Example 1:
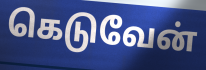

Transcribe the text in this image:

கெடுவேன்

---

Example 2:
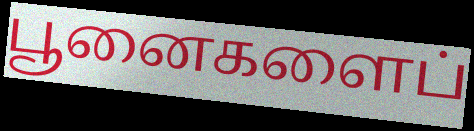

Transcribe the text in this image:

பூனைகளைப்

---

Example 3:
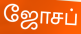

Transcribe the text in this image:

ஜோசப்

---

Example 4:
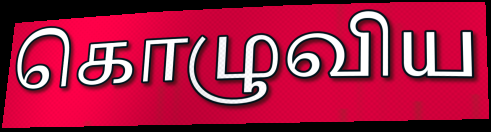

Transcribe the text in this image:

கொழுவிய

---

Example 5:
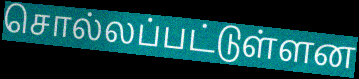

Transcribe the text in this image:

சொல்லப்பட்டுள்ளன